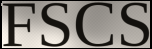
FSCS